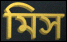
মিস